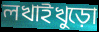
লখাইখুড়ো